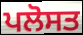
ਪਲੋਸਤ